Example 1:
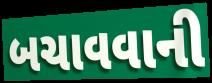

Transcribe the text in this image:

બચાવવાની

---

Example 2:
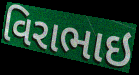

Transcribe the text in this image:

વિરાભાઇ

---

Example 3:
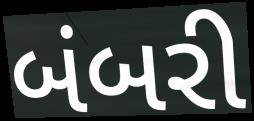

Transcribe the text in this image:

બંબરી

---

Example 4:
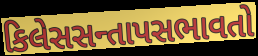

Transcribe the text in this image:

કિલેસસન્તાપસભાવતો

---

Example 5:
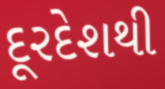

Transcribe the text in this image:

દૂરદેશથી